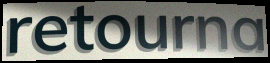
retourna